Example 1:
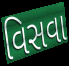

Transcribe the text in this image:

વિસવા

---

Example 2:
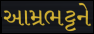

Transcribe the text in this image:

આમ્રભટ્ટને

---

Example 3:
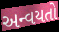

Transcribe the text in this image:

અન્વયતો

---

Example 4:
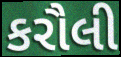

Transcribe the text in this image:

કરૌલી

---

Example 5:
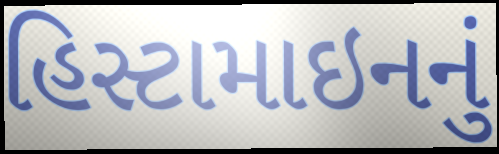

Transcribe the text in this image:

હિસ્ટામાઇનનું